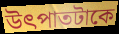
উৎপাতটাকে